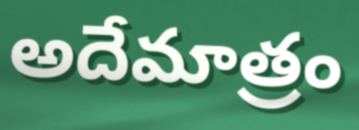
అదేమాత్రం